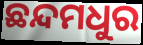
ଛନ୍ଦମଧୁର